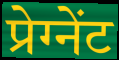
प्रेग्‍नेंट